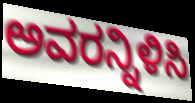
ಅವರನ್ನಿಳಿಸಿ